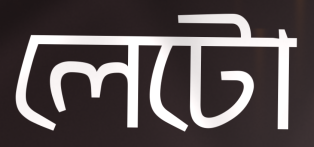
লেটো